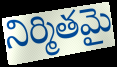
నిర్మితమై